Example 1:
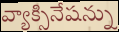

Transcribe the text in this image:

వ్యాక్సినేషన్ను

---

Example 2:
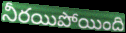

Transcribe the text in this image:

నీరయిపోయింది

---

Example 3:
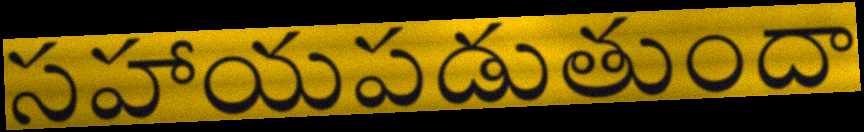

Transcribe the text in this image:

సహాయపడుతుందా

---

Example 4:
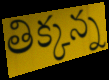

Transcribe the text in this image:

తిక్కన్న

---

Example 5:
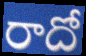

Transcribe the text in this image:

రాదో